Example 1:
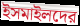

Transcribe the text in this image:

ইসমাইলদের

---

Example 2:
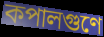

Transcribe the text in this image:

কপালগুণে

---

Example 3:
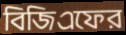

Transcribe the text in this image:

বিজিএফের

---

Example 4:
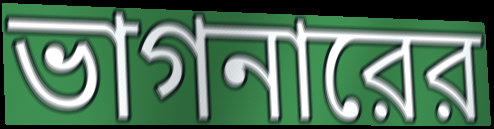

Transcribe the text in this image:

ভাগনারের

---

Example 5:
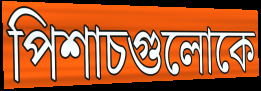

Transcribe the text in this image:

পিশাচগুলোকে